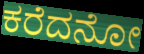
ಕರೆದನೋ